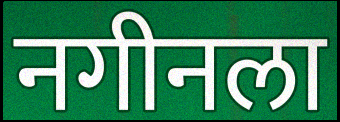
नगीनला